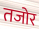
तजोर